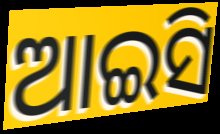
ଆଇସି